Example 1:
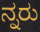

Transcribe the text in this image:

ನ್ನರು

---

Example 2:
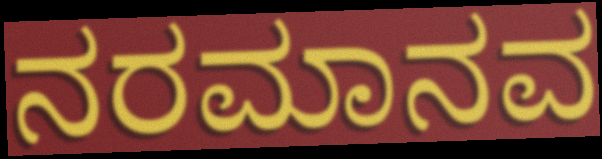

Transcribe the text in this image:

ನರಮಾನವ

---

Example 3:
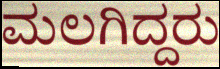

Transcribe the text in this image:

ಮಲಗಿದ್ದರು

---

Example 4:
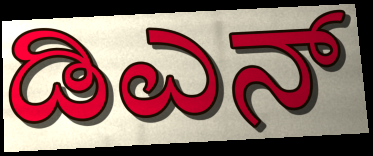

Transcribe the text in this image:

ಡಿಎನ್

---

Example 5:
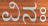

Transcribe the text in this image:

ವಿನಃ